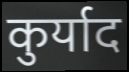
कुर्याद